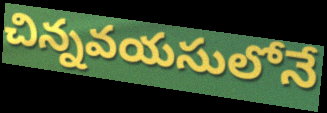
చిన్నవయసులోనే